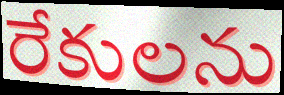
రేకులను